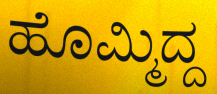
ಹೊಮ್ಮಿದ್ದ